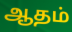
ஆதம்